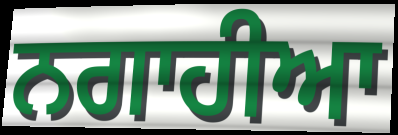
ਨਗਾਹੀਆ